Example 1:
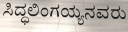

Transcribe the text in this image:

ಸಿದ್ಧಲಿಂಗಯ್ಯನವರು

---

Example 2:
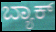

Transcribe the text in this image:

ಬ್ಯಾಕ್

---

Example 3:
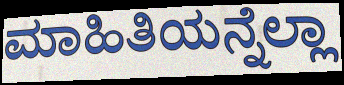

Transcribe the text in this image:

ಮಾಹಿತಿಯನ್ನೆಲ್ಲಾ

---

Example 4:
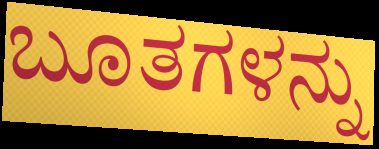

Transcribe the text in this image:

ಬೂತಗಳನ್ನು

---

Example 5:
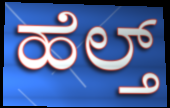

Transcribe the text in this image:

ಹೆಲ್ತ್